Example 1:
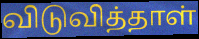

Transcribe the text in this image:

விடுவித்தாள்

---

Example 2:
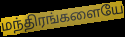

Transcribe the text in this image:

மந்திரங்களையே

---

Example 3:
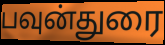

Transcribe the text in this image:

பவுன்துரை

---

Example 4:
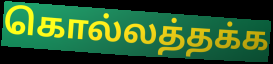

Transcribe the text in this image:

கொல்லத்தக்க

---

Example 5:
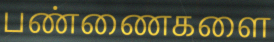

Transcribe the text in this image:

பண்ணைகளை